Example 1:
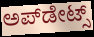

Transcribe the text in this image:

ಅಪ್‌ಡೇಟ್ಸ್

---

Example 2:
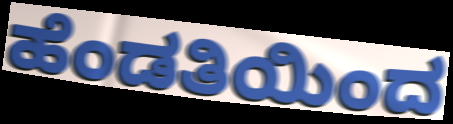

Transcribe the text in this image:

ಹೆಂಡತಿಯಿಂದ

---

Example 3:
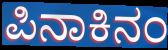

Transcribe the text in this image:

ಪಿನಾಕಿನಂ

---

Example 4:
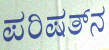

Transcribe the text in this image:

ಪರಿಷತ್‌ನ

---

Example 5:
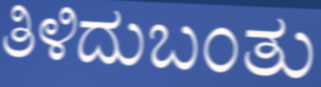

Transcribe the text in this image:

ತಿಳಿದುಬಂತು